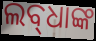
ଲବ୍‌ଧାଙ୍କ